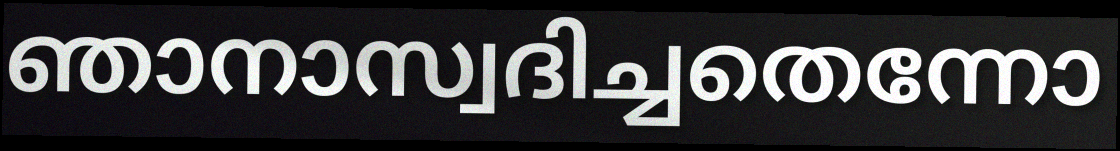
ഞാനാസ്വദിച്ചതെന്നോ